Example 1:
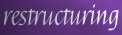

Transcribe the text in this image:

restructuring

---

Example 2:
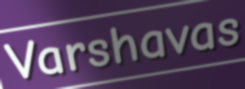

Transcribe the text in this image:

Varshavas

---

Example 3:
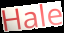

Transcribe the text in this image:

Hale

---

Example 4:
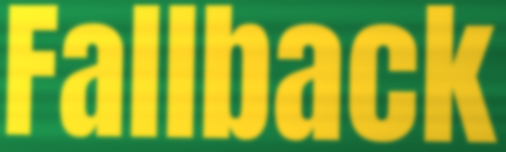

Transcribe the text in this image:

Fallback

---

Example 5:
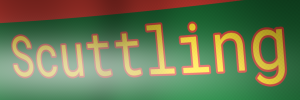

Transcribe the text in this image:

Scuttling